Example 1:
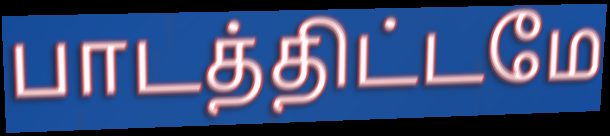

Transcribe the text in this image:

பாடத்திட்டமே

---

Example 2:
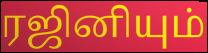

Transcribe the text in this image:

ரஜினியும்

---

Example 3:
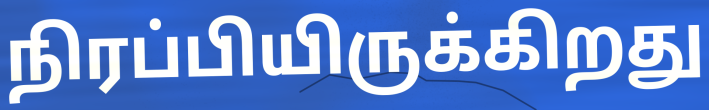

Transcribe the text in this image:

நிரப்பியிருக்கிறது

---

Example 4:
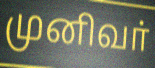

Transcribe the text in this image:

முனிவர்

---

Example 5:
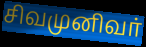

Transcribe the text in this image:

சிவமுனிவர்